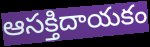
ఆసక్తిదాయకం